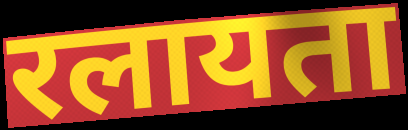
रलायता